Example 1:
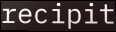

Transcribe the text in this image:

recipit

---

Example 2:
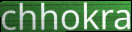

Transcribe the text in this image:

chhokra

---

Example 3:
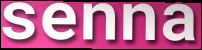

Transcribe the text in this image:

senna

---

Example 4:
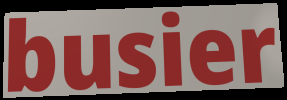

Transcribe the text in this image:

busier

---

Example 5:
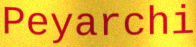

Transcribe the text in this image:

Peyarchi